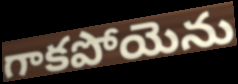
గాకపోయెను